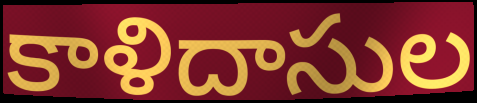
కాళిదాసుల